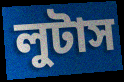
লুটাস